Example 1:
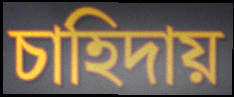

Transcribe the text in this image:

চাহিদায়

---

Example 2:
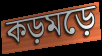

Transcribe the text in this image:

কড়মড়ে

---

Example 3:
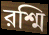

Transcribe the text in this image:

রশ্মি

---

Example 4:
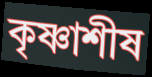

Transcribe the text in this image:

কৃষ্ণাশীষ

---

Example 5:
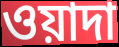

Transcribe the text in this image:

ওয়াদা